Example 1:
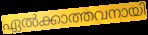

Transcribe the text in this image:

ഏൽക്കാത്തവനായി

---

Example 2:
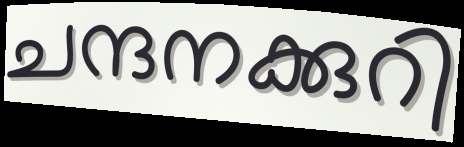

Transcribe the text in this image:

ചന്ദനക്കുറി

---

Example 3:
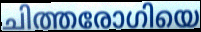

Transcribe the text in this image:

ചിത്തരോഗിയെ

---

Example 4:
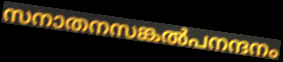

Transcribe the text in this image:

സനാതനസങ്കൽപനന്ദനം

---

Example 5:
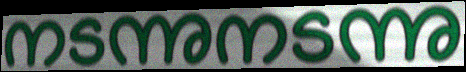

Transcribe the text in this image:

നടന്നുനടന്നു